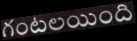
గంటలయింది